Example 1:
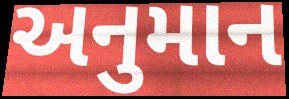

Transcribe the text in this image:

અનુમાન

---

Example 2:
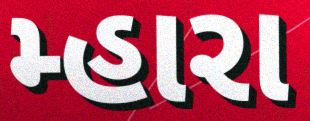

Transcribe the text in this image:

મ્હારા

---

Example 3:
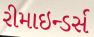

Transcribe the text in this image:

રીમાઇન્ડર્સ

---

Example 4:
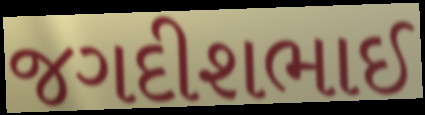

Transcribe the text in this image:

જગદીશભાઈ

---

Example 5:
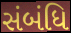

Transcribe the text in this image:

સંબંધિ